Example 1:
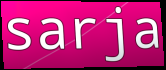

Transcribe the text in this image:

sarja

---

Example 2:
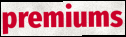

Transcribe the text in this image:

premiums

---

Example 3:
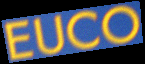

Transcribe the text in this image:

EUCO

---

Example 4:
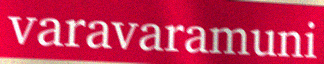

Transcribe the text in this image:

varavaramuni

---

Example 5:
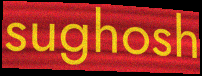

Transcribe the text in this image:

sughosh